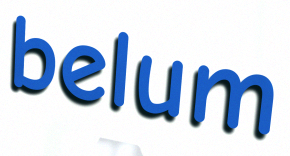
belum